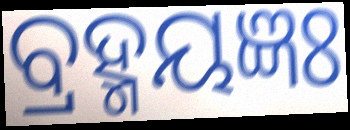
ବ୍ରହ୍ମୟଜ୍ଞଃ